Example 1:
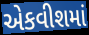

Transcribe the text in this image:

એકવીશમાં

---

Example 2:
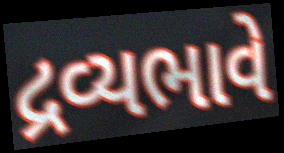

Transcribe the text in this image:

દ્રવ્યભાવે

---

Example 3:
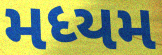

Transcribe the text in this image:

મધ્યમ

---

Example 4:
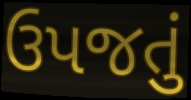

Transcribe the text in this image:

ઉપજતું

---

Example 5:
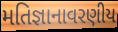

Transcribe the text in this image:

મતિજ્ઞાનાવરણીય